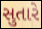
સુતારે